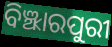
ବିଞ୍ଝାରପୁରୀ